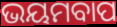
ଭୟମବାପ